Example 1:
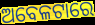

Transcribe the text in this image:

ଅବେଳଟାରେ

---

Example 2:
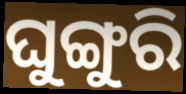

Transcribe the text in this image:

ଘୁଙ୍ଗୁରି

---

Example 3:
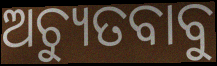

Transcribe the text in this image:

ଅଚ୍ୟୁତବାବୁ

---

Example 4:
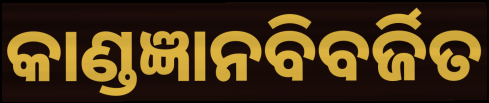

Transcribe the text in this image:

କାଣ୍ଡଜ୍ଞାନବିବର୍ଜିତ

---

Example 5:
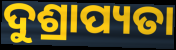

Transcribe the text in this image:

ଦୁଶ୍ରାପ୍ୟତା